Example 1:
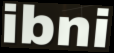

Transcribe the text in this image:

ibni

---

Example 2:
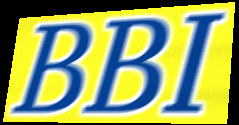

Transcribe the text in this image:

BBI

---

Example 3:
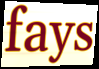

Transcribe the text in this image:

fays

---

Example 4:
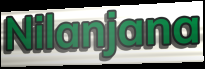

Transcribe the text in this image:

Nilanjana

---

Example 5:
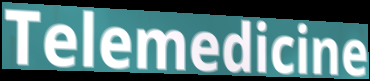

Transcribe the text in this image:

Telemedicine